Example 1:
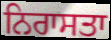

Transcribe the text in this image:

ਨਿਰਾਸਤਾ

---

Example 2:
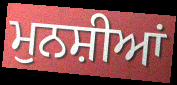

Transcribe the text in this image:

ਮੁਨਸ਼ੀਆਂ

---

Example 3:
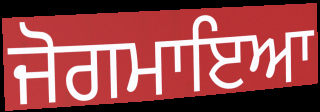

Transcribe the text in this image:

ਜੋਗਮਾਇਆ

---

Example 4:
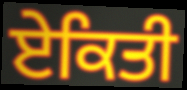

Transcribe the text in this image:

ਏਕਿਤੀ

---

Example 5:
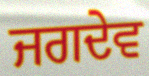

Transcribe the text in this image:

ਜਗਦੇਵ